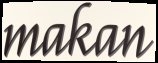
makan